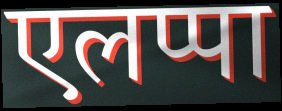
एलप्पा